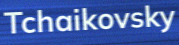
Tchaikovsky